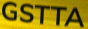
GSTTA